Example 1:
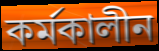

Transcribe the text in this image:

কর্মকালীন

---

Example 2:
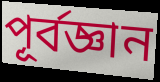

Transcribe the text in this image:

পূর্বজ্ঞান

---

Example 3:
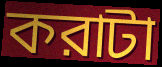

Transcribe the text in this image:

করাটা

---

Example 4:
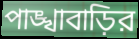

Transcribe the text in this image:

পাঙ্খাবাড়ির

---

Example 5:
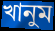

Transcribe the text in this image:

খানুম